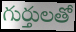
గుర్తులతో